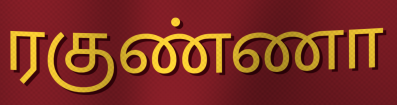
ரகுண்ணா